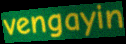
vengayin